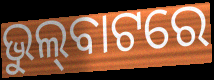
ଭୁଲ୍‌ବାଟରେ